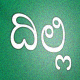
ದಿಲ್ಲಿ